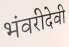
भंवरीदेवी